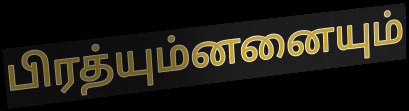
பிரத்யும்னனையும்